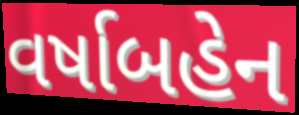
વર્ષાબહેન